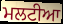
ਮਲਟੀਆ